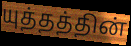
யுத்தத்தின்